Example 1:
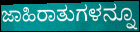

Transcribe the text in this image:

ಜಾಹಿರಾತುಗಳನ್ನೂ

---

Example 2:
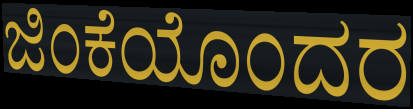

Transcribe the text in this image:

ಜಿಂಕೆಯೊಂದರ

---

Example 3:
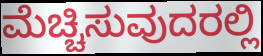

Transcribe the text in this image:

ಮೆಚ್ಚಿಸುವುದರಲ್ಲಿ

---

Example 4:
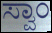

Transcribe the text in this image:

ಸ್ವಾಂ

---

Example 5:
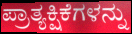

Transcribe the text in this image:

ಪ್ರಾತ್ಯಕ್ಷಿಕೆಗಳನ್ನು